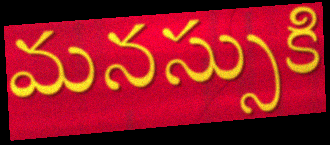
మనస్సుకి